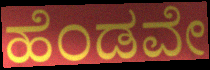
ಹೆಂಡವೇ